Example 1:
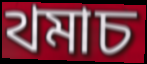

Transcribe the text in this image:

থমাচ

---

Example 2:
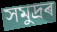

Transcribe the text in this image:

সমুদ্ৰৰ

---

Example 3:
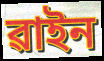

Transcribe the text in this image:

ৱাইন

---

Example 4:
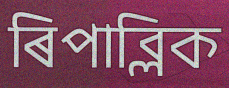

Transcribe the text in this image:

ৰিপাব্লিক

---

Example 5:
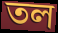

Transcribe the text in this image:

তল